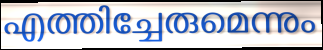
എത്തിച്ചേരുമെന്നും